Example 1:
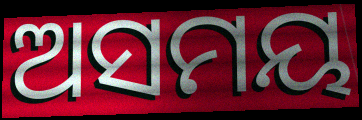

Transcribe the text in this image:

ଅସମୟ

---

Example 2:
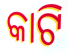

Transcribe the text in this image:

କାଟି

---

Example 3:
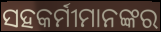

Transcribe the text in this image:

ସହକର୍ମୀମାନଙ୍କର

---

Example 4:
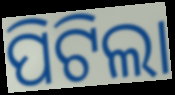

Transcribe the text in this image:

ପିଟିଲା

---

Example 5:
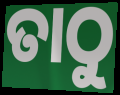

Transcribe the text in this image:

ତାଠୁ